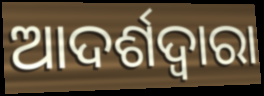
ଆଦର୍ଶଦ୍ୱାରା